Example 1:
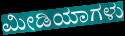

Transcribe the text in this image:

ಮೀಡಿಯಾಗಳು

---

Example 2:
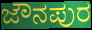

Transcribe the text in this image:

ಜೌನಪುರ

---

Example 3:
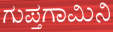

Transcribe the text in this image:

ಗುಪ್ತಗಾಮಿನಿ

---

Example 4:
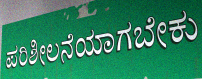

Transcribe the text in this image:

ಪರಿಶೀಲನೆಯಾಗಬೇಕು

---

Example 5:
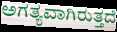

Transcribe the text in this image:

ಅಗತ್ಯವಾಗಿರುತ್ತದೆ